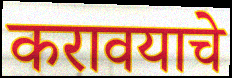
करावयाचे